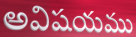
అవిషయము